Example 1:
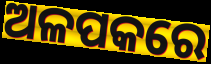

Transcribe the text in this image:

ଅଳପକରେ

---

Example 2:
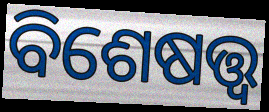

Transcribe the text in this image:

ବିଶେଷତ୍ତ୍ୱ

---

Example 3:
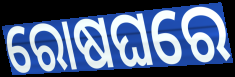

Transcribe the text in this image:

ରୋଷଘରେ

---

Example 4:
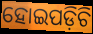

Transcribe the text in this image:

ହୋଇପଡ଼ିଚି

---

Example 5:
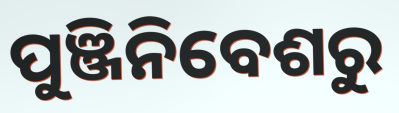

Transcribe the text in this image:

ପୁଞ୍ଜିନିବେଶରୁ